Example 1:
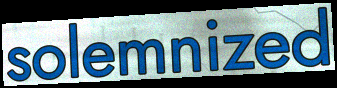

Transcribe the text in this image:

solemnized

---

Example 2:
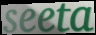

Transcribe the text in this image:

seeta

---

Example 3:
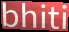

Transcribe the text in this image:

bhiti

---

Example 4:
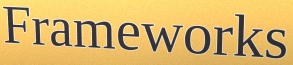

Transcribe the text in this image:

Frameworks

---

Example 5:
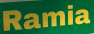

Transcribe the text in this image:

Ramia